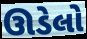
ઊડેલો